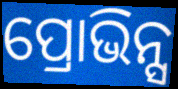
ପ୍ରୋଭିନ୍ସ